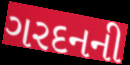
ગરદનની